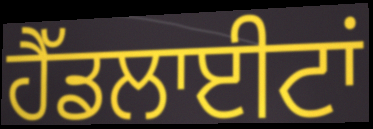
ਹੈੱਡਲਾਈਟਾਂ